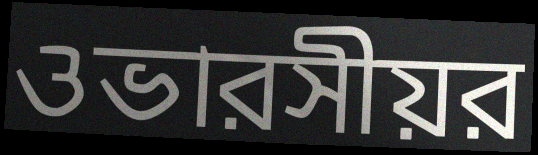
ওভারসীয়র